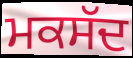
ਮਕਸੱਦ